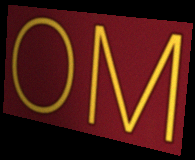
OM